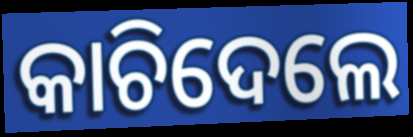
କାଚିଦେଲେ